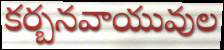
కర్బనవాయువుల